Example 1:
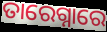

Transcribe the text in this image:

ତାରେଗ୍ନାରେ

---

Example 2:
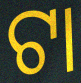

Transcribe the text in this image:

ଟା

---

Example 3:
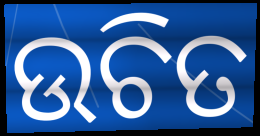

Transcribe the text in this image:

ଉଚିତ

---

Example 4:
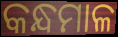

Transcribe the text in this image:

କନ୍ଧମାଳ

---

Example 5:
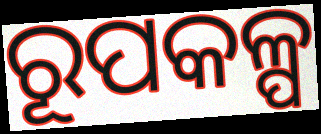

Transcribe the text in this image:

ରୂପକଳ୍ପ